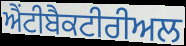
ਐਂਟੀਬੈਕਟੀਰੀਅਲ